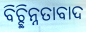
ବିଚ୍ଛିନ୍ନତାବାଦ